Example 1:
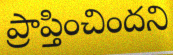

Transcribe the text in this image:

ప్రాప్తించిందని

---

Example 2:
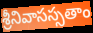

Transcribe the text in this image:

శ్రీనివాసస్సతాం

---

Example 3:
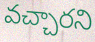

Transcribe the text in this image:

వచ్చారని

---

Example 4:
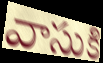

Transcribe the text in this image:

వాసుకి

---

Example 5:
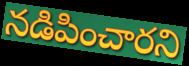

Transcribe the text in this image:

నడిపించారని